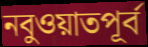
নবুওয়াতপূর্ব